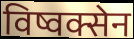
विष्वक्सेन